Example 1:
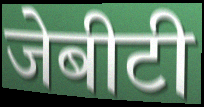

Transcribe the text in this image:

जेबीटी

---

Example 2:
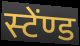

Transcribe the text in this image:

स्टेंण्ड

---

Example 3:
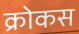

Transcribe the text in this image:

क्रोकस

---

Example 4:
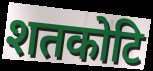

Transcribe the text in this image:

शतकोटि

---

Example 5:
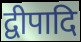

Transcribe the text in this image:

द्वीपादि